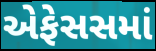
એફેસસમાં